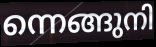
ന്നെങ്ങുനി